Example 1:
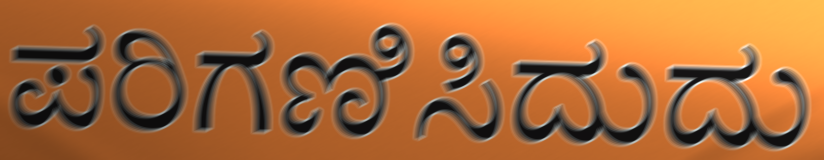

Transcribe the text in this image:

ಪರಿಗಣಿಸಿದುದು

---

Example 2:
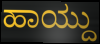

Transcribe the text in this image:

ಹಾಯ್ದು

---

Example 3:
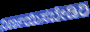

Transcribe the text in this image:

ನಿರ್ಣಯಿಸಬೇಡಿರಿ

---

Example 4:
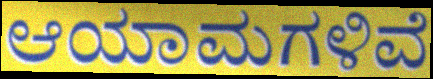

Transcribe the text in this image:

ಆಯಾಮಗಳಿವೆ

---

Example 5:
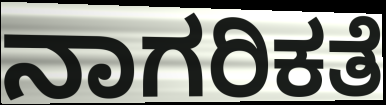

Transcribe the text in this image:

ನಾಗರಿಕತೆ